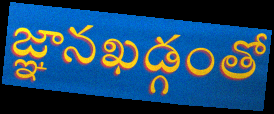
జ్ఞానఖడ్గంతో